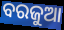
ବରଜୁଆ